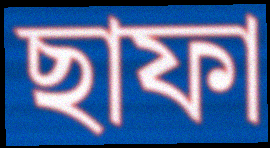
ছাফা